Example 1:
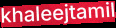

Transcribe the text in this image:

khaleejtamil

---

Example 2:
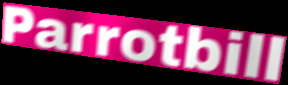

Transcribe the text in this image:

Parrotbill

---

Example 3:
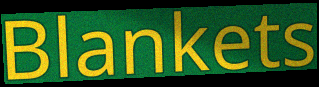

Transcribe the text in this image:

Blankets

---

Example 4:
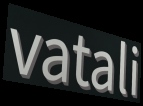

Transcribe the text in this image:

vatali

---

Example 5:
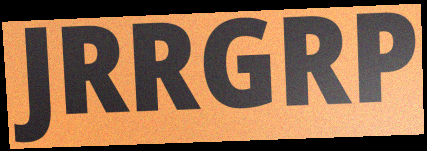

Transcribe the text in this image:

JRRGRP